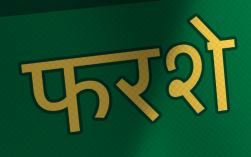
फरशे